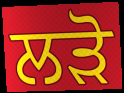
ਲੜੋ